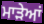
ਮਾੜੇਆਂ